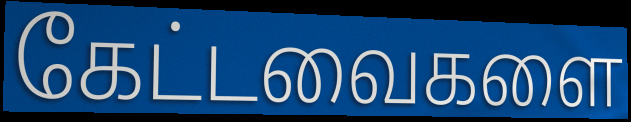
கேட்டவைகளை